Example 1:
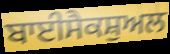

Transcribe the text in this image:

ਬਾਈਸੈਕਸ਼ੁਅਲ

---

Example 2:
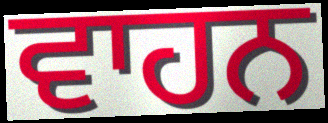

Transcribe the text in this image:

ਵਾਹਨ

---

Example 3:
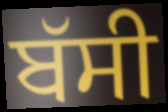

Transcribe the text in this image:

ਬੱਸੀ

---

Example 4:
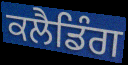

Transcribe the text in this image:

ਕਲੈਡਿੰਗ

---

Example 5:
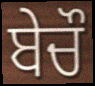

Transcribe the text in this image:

ਬੇਚੌ